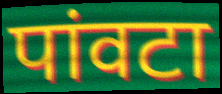
पांवटा